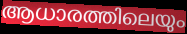
ആധാരത്തിലെയും